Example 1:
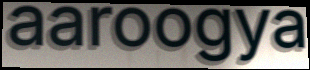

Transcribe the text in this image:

aaroogya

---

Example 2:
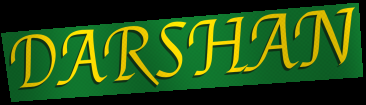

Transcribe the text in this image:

DARSHAN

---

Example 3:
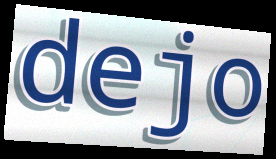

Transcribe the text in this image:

dejo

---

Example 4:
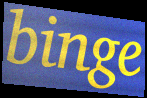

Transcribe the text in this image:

binge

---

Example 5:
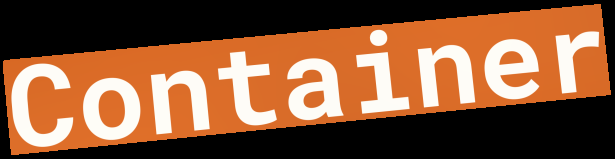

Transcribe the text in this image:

Container